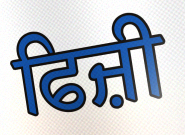
ਫਿਜ਼ੀ